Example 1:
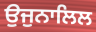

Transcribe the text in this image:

ਉਜੁਨਾਲਿਲ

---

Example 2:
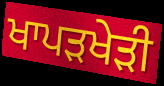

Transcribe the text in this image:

ਖਾਪੜਖੇੜੀ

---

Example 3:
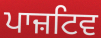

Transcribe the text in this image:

ਪਾਜ਼ਟਿਵ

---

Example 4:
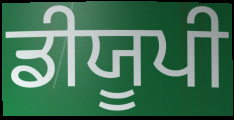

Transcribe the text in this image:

ਡੀਯੂਪੀ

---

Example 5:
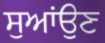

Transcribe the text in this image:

ਸੁਆਂਉਣ